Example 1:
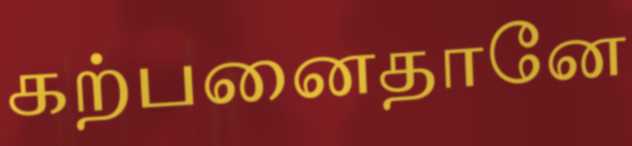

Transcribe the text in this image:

கற்பனைதானே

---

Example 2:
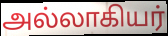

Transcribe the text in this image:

அல்லாகியர்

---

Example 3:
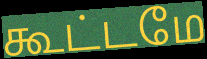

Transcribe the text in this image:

கூட்டமே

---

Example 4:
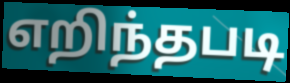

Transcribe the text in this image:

எறிந்தபடி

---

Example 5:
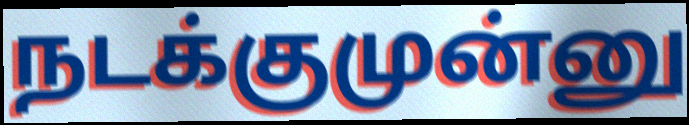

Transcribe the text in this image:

நடக்குமுன்னு